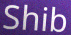
Shib